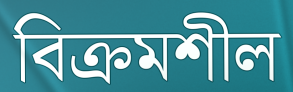
বিক্রমশীল